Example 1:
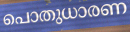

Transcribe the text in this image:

പൊതുധാരണ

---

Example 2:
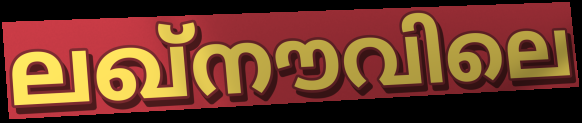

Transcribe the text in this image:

ലഖ്നൗവിലെ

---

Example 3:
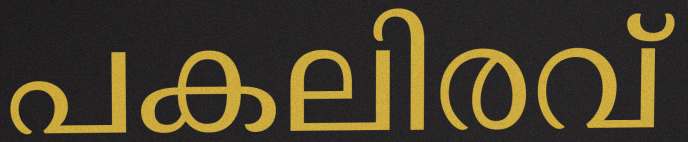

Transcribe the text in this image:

പകലിരവ്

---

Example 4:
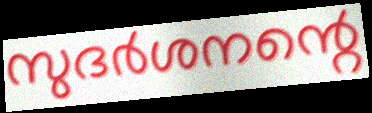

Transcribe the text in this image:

സുദർശനന്റെ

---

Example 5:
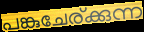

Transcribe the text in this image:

പങ്കുചേര്ക്കുന്ന